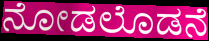
ನೋಡಲೊಡನೆ